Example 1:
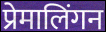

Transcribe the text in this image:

प्रेमालिंगन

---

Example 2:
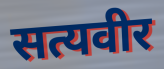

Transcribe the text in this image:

सत्यवीर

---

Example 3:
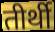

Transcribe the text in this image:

तीर्थी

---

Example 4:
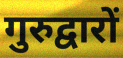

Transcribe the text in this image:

गुरुद्वारों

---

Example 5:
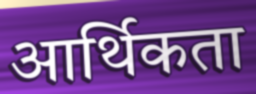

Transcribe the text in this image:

आर्थिकता